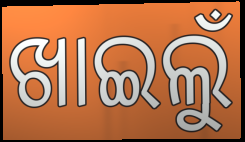
ଖାଇଲୁଁ